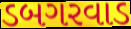
ડબગરવાડ